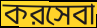
করসেবা